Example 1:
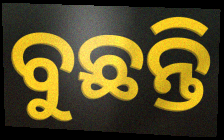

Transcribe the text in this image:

ବୁଛନ୍ତି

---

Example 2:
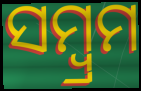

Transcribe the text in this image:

ସମ୍ବ୍ରମ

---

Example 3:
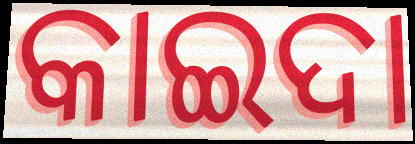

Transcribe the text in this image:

କାଇଦା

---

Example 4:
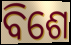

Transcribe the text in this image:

ବିଶେ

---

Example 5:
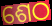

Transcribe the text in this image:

ଶେଠ